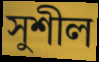
সুশীল